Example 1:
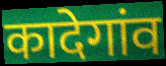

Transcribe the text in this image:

कादेगांव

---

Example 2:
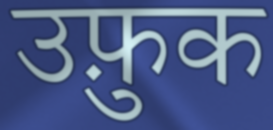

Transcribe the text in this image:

उफ़ुक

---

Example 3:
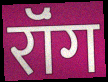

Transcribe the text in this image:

रॉंग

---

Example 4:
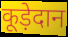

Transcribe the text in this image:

कूड़ेदान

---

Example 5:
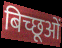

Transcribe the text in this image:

बिच्छूओं